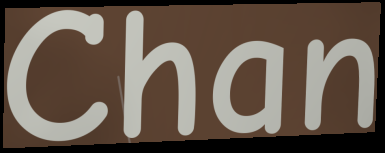
Chan